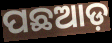
ପଛଆଡ଼